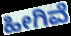
ಹೀಗಿವೆ